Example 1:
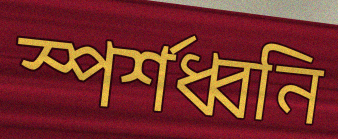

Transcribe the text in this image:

স্পৰ্শধ্বনি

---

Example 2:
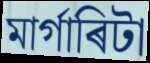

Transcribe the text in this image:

মাৰ্গাৰিটা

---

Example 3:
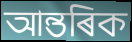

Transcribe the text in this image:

আন্তৰিক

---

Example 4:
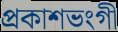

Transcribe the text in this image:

প্ৰকাশভংগী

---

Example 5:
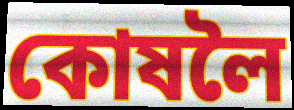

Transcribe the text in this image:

কোষলৈ